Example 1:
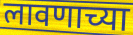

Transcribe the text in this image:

लावणाच्या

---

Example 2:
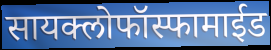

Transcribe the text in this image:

सायक्लोफॉस्फामाईड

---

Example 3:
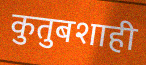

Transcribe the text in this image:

कुतुबशाही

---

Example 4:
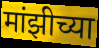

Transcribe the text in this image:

मांझीच्या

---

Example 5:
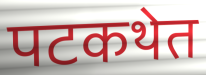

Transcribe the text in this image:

पटकथेत